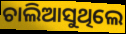
ଚାଲିଆସୁଥିଲେ